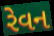
રેવન